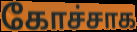
கோச்சாக